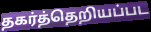
தகர்த்தெறியப்பட